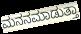
ಮನನಮಾಡುತ್ತಾ